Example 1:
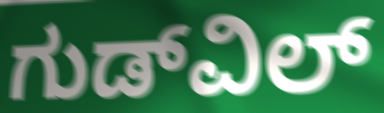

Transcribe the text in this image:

ಗುಡ್‌ವಿಲ್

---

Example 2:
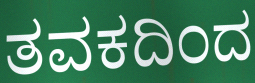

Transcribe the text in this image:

ತವಕದಿಂದ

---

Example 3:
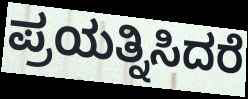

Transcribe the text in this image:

ಪ್ರಯತ್ನಿಸಿದರೆ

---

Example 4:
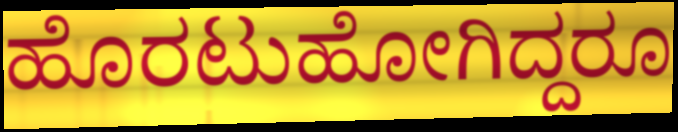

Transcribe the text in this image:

ಹೊರಟುಹೋಗಿದ್ದರೂ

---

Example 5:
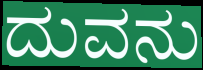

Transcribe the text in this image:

ದುವನು